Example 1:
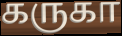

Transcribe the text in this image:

கருகா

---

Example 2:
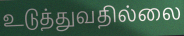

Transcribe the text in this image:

உடுத்துவதில்லை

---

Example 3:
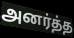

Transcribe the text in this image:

அனர்த்த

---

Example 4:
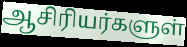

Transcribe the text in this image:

ஆசிரியர்களுள்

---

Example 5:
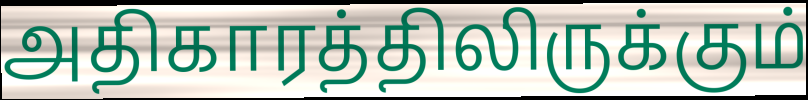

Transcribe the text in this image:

அதிகாரத்திலிருக்கும்